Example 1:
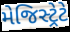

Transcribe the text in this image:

મેજિસ્ટ્રેટે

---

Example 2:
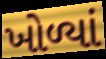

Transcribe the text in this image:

ખોળ્યાં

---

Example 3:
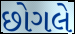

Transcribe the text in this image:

છોગલે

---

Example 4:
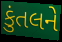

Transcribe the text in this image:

કુંતલને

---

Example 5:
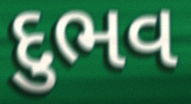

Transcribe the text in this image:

દુભવ